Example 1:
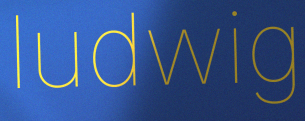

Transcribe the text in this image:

ludwig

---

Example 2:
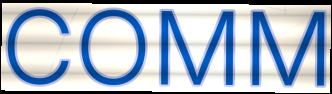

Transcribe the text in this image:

COMM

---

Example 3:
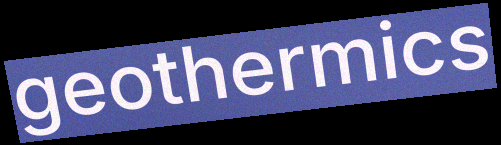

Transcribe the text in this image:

geothermics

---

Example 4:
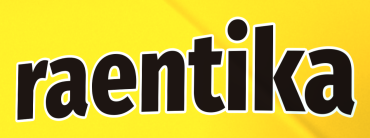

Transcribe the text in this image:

raentika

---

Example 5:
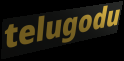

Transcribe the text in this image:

telugodu